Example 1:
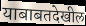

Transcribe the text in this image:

याबाबतदेखील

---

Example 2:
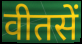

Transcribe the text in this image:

वीतसें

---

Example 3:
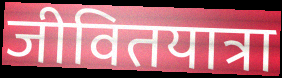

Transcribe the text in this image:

जीवितयात्रा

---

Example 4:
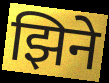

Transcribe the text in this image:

झिने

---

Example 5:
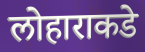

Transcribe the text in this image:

लोहाराकडे